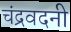
चंद्रवदनी